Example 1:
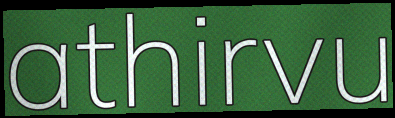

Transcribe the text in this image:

athirvu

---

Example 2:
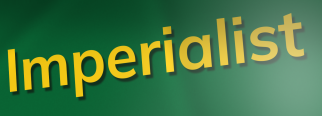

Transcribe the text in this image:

Imperialist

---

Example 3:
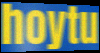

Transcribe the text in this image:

hoytu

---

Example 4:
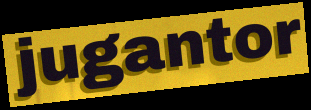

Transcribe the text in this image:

jugantor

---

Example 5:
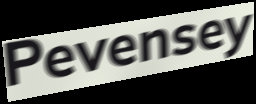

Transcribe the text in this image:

Pevensey